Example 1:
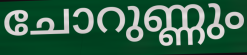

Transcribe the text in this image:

ചോറുണ്ണും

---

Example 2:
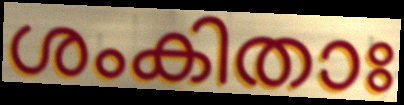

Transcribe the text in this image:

ശംകിതാഃ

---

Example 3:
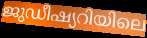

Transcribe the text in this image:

ജുഡീഷ്യറിയിലെ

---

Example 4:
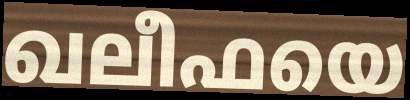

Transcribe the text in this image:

ഖലീഫയെ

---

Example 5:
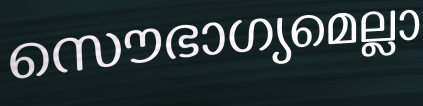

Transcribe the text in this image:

സൌഭാഗ്യമെല്ലാ